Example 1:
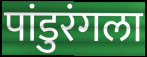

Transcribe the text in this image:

पांडुरंगला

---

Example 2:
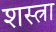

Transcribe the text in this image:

शस्त्रा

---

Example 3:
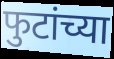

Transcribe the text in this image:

फुटांच्‍या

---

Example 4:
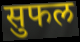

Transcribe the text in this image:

सुफल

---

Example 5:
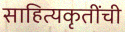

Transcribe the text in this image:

साहित्यकृतींची